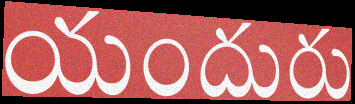
యందురు